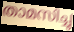
താമസിച്ചു